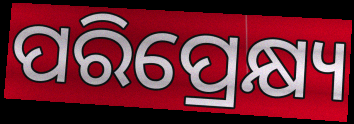
ପରିପ୍ରେକ୍ଷ୍ୟ